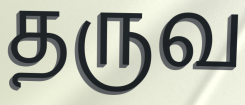
தருவ